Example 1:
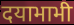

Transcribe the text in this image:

दयाभाभी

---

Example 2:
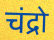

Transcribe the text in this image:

चंद्रो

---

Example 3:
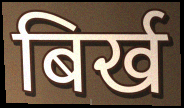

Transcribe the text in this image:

बिर्ख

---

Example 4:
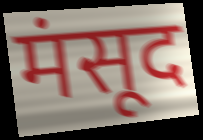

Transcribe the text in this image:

मंसूद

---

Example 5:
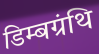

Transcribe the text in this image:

डिम्बग्रंथि